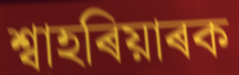
শ্বাহৰিয়াৰক